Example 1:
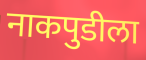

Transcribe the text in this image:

नाकपुडीला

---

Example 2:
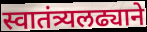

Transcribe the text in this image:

स्वातंत्र्यलढ्याने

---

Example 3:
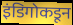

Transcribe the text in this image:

इंडिगोकडून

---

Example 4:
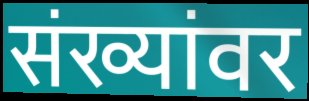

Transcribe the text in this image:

संख्यांवर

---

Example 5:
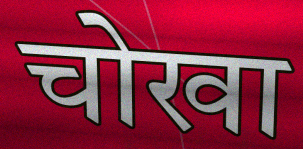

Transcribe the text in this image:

चोखा